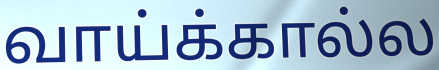
வாய்க்கால்ல